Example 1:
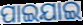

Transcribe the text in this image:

ପାଇଯାଇ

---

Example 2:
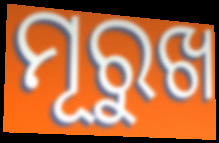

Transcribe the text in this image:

ମୂରୁଖ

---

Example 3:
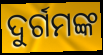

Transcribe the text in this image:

ଦୁର୍ଗମଙ୍କ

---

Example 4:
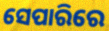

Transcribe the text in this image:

ସେପାରିରେ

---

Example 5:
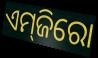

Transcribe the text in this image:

ଏମ୍‌ଜିରୋ